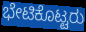
ಭೇಟಿಕೊಟ್ಟರು